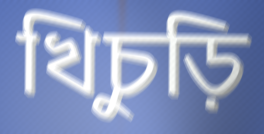
খিচুড়ি